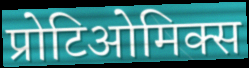
प्रोटिओमिक्स